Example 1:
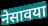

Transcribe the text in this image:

नेसावया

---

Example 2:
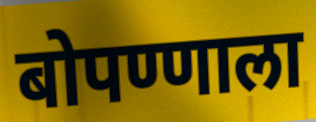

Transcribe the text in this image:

बोपण्णाला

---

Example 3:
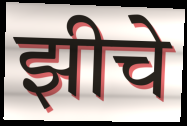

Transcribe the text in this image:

झीचे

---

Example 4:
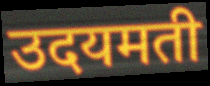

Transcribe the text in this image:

उदयमती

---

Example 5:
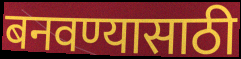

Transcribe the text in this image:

बनवण्‍यासाठी